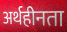
अर्थहीनता